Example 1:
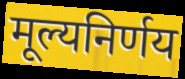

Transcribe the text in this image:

मूल्यनिर्णय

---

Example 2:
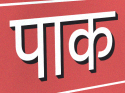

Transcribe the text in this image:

पाक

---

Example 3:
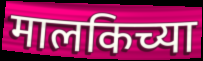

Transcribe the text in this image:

मालकिच्या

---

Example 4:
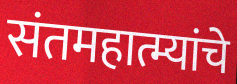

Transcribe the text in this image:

संतमहात्म्यांचे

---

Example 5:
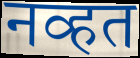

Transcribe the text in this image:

नव्हत